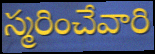
స్మరించేవారి